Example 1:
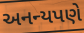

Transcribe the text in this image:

અનન્યપણે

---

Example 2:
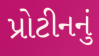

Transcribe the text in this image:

પ્રોટીનનું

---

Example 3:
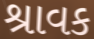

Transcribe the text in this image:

શ્રાવક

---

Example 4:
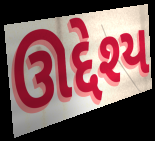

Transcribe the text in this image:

ઊદ્દેશ્ય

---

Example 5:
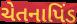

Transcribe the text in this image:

ચેતનાપિંડ